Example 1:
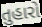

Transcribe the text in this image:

તુહારો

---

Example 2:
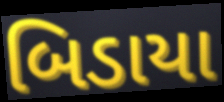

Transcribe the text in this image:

બિડાયા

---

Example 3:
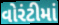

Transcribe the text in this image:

વોરંટીમાં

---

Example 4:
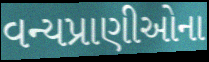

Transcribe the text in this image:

વન્યપ્રાણીઓના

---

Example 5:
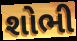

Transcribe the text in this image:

શોભી